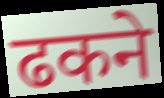
ढकने